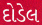
દોડેલ